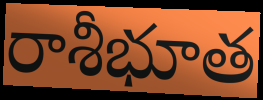
రాశీభూత